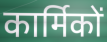
कार्मिकों